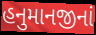
હનુમાનજીનાં